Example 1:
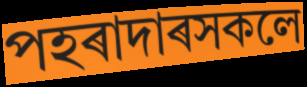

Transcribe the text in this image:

পহৰাদাৰসকলে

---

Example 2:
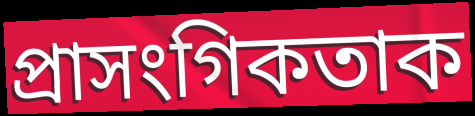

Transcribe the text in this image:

প্ৰাসংগিকতাক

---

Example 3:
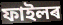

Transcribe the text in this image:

ফাইলৰ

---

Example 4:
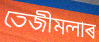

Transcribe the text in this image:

তেজীমলাৰ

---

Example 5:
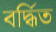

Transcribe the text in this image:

বৰ্দ্ধিত